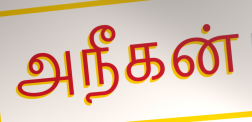
அநீகன்